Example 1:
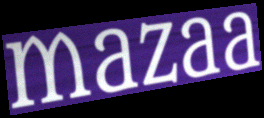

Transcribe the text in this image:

mazaa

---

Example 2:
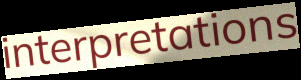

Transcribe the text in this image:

interpretations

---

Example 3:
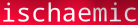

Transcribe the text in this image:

ischaemic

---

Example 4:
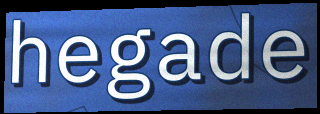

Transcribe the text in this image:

hegade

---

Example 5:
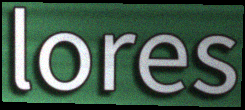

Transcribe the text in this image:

lores